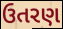
ઉતરણ